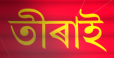
তীৰাই